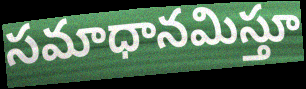
సమాధానమిస్తూ